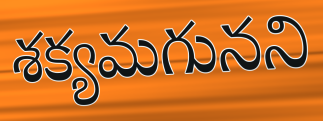
శక్యమగునని